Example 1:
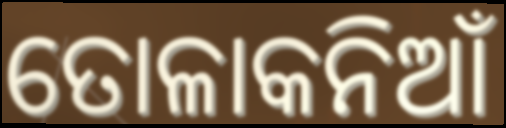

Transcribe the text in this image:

ତୋଳାକନିଆଁ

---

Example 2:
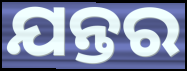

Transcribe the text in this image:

ଯନ୍ତର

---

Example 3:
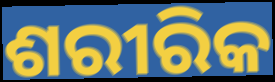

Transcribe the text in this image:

ଶରୀରିକ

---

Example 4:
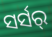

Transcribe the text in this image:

ସର୍ସର୍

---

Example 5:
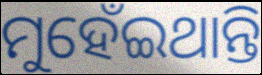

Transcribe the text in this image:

ମୁହେଁଇଥାନ୍ତି